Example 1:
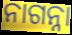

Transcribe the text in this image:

ନାଗନ୍ନା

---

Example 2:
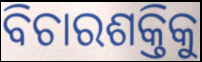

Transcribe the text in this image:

ବିଚାରଶକ୍ତିକୁ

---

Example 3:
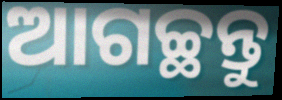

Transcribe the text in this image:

ଆଗଚ୍ଛନ୍ତୁ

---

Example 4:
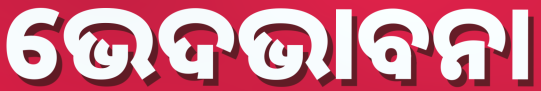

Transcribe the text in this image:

ଭେଦଭାବନା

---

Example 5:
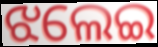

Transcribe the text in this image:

ଝଲେଇ